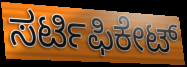
ಸರ್ಟಿಫಿಕೇಟ್